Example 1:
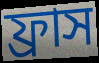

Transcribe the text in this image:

ফ্রাস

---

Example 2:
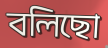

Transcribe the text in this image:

বলিছো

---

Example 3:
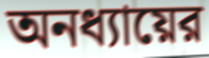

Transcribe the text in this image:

অনধ্যায়ের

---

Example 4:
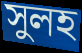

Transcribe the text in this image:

সুলহ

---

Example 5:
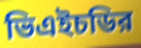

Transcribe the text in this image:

ভিএইচডির